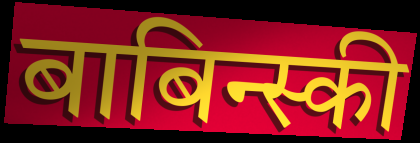
बाबिन्स्की